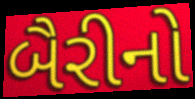
બૈરીનો